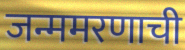
जन्ममरणाची